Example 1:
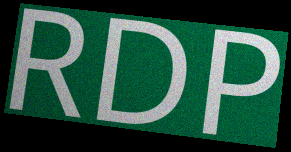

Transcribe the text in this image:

RDP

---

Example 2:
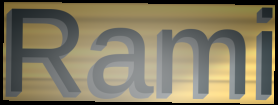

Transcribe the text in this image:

Rami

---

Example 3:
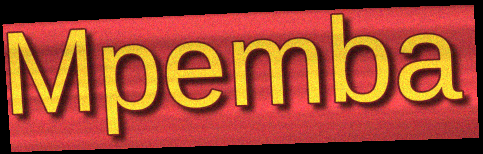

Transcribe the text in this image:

Mpemba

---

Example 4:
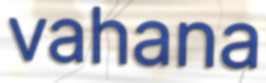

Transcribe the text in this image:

vahana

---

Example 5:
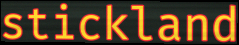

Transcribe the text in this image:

stickland